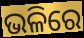
ଭଳିରେ